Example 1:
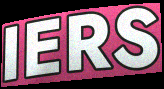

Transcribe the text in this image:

IERS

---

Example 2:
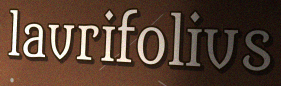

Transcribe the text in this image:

laurifolius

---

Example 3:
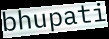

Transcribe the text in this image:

bhupati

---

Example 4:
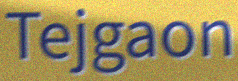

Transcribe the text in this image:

Tejgaon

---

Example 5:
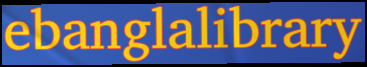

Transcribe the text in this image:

ebanglalibrary